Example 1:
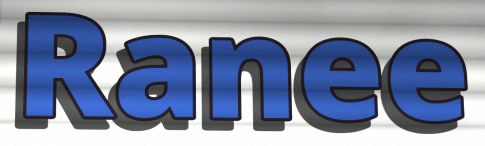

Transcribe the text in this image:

Ranee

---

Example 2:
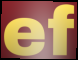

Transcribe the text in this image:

ef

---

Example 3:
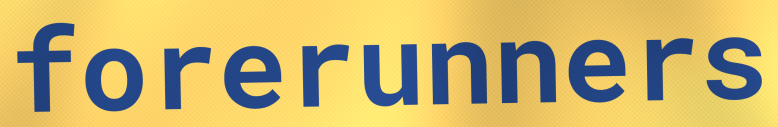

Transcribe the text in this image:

forerunners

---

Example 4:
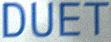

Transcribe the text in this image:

DUET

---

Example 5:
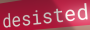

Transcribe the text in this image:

desisted